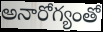
అనారోగ్యంతో